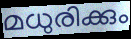
മധുരിക്കും